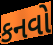
કનવો